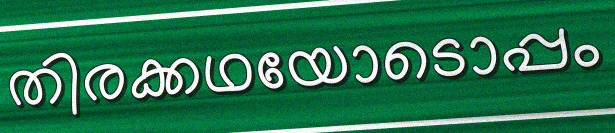
തിരക്കഥയോടൊപ്പം